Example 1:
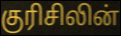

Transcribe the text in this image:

குரிசிலின்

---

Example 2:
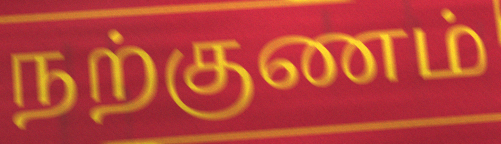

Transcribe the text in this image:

நற்குணம்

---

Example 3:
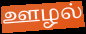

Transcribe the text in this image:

ஊழல்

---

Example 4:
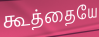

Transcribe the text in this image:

கூத்தையே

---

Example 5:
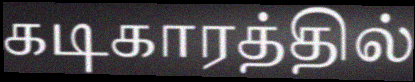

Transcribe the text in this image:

கடிகாரத்தில்